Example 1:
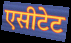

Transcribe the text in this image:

एसीटेट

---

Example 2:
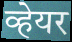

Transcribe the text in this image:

व्हेयर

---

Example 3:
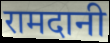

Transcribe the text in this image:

रामदानी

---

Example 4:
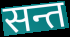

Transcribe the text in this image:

सन्‍त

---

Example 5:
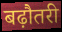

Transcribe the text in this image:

बढ़ौतरी